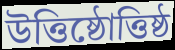
উত্তিষ্ঠোত্তিষ্ঠ